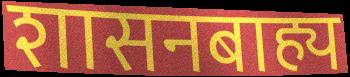
शासनबाह्य